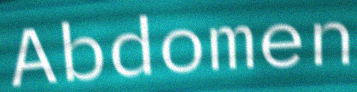
Abdomen